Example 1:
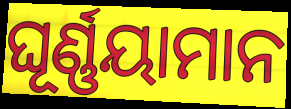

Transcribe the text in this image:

ଘୂର୍ଣ୍ଣୟାମାନ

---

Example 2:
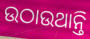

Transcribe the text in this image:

ଉଠାଉଥାନ୍ତି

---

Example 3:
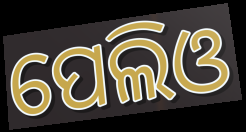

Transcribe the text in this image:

ପେଲିଓ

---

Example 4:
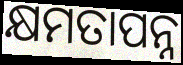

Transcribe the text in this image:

କ୍ଷମତାପନ୍ନ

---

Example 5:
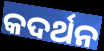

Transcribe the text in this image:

କଦର୍ଥନ